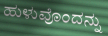
ಹುಳುವೊಂದನ್ನು